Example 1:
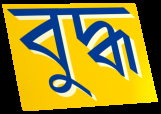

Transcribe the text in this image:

বুদ্ধ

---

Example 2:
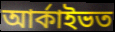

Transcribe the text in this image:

আৰ্কাইভত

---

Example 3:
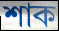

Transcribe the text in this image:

শাক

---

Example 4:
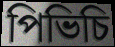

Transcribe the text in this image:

পিভিচি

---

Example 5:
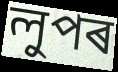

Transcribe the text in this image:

লুপৰ